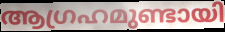
ആഗ്രഹമുണ്ടായി